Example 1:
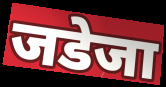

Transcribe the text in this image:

जडेजा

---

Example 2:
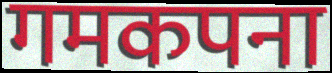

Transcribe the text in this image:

गमकपना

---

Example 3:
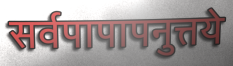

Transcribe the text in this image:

सर्वपापापनुत्तये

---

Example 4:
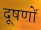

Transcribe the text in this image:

दूषणों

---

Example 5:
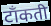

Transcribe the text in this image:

टाँकती